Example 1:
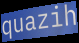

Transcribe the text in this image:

quazih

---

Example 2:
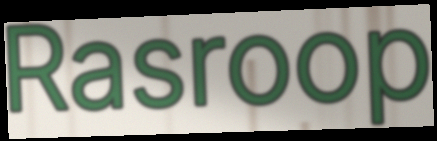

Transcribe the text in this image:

Rasroop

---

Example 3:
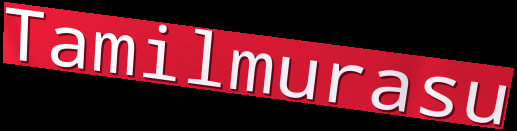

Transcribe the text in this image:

Tamilmurasu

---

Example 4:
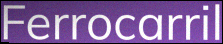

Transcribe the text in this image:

Ferrocarril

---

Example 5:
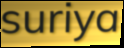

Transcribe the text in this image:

suriya